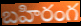
బహిరంగ